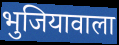
भुजियावाला